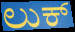
ಲುಕ್